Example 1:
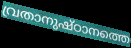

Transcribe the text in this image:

വ്രതാനുഷ്ഠാനത്തെ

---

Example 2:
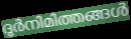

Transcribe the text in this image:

ദുർനിമിത്തങ്ങൾ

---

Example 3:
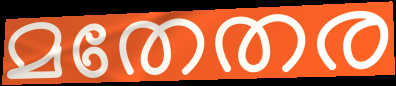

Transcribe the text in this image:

മതേതര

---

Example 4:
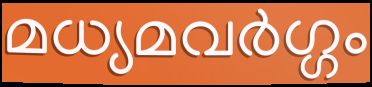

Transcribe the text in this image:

മധ്യമവർഗ്ഗം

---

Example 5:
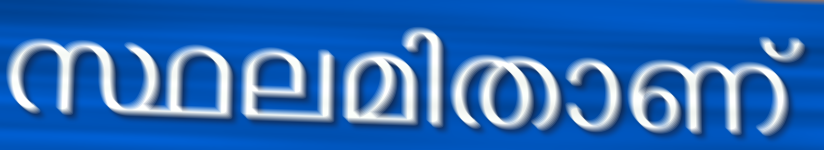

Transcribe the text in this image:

സ്ഥലമിതാണ്